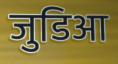
जुडिआ